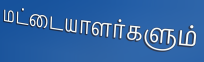
மட்டையாளர்களும்